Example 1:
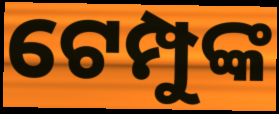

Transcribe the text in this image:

ଟେମ୍ପୁଙ୍କ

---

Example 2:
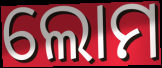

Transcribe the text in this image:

ଲୋମ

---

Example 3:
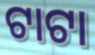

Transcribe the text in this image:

ଟାଟା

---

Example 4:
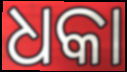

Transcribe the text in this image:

ଧକା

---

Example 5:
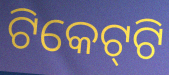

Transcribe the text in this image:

ଟିକେଟ୍‌ଟି